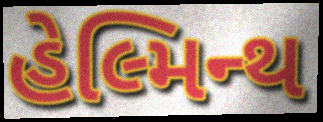
હેલ્મિન્થ